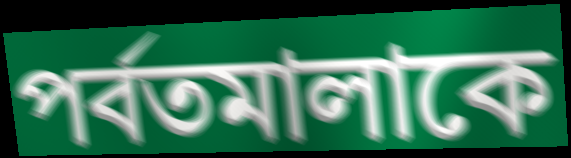
পর্বতমালাকে